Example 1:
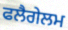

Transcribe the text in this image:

ਫਲੈਗੇਲਮ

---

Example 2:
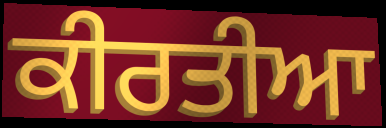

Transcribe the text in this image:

ਕੀਰਤੀਆ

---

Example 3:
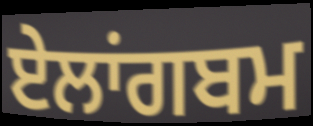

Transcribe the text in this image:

ਏਲਾਂਗਬਮ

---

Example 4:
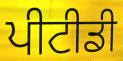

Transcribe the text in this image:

ਪੀਟੀਡੀ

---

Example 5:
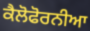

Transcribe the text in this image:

ਕੈਲੋਫੋਰਨੀਆ